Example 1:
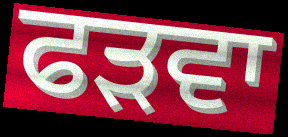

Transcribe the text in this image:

ਫੜਵਾ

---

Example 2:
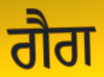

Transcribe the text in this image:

ਗੈਗ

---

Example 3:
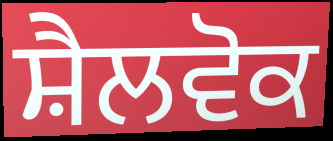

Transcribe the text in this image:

ਸ਼ੈਲਵੋਕ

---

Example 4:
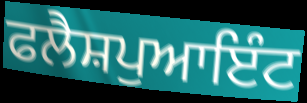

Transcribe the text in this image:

ਫਲੈਸ਼ਪੁਆਇੰਟ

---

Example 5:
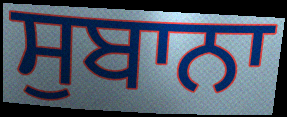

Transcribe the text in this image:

ਸੁਬਾਨਾ